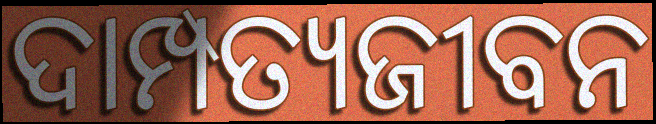
ଦାମ୍ପତ୍ୟଜୀବନ